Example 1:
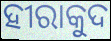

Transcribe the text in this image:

ହୀରାକୁଦ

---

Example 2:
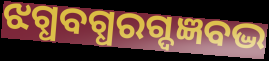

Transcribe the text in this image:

ଝଗ୍ଧବଗ୍ଧରଗ୍ଦଜ୍ଞବଦ୍ଭ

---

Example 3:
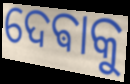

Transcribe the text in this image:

ଦେଵାକୁ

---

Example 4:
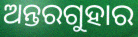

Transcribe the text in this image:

ଅନ୍ତରଗୁହାର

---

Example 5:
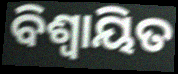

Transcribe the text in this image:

ବିଶ୍ବାୟିତ